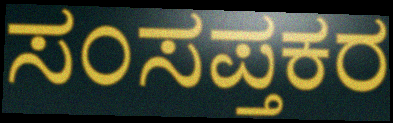
ಸಂಸಪ್ತಕರ